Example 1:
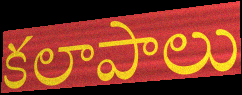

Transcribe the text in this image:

కలాపాలు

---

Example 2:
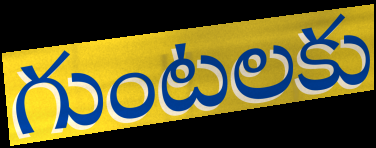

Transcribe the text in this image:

గుంటలకు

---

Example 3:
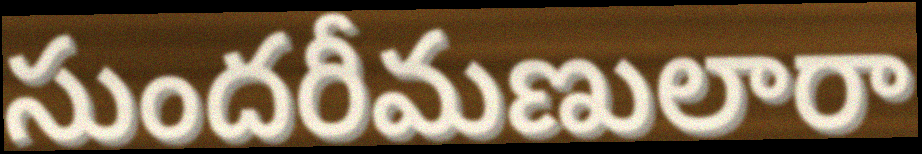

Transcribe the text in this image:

సుందరీమణులారా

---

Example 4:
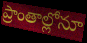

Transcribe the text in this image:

ప్రాంతాల్లోనూ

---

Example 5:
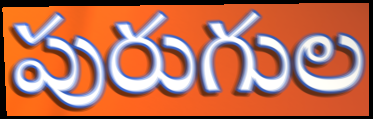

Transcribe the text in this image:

పురుగుల